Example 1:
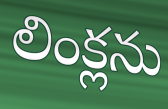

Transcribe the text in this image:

లింక్లను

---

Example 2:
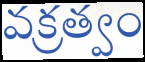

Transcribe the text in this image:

వక్రత్వం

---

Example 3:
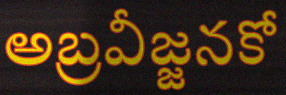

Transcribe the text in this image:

అబ్రవీజ్జనకో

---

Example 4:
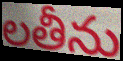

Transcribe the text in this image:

లతీను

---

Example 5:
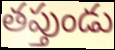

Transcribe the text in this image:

తప్తుండు